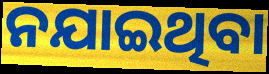
ନଯାଇଥିବା